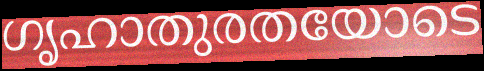
ഗൃഹാതുരതയോടെ